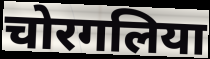
चोरगलिया